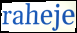
raheje